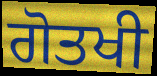
ਗੋਤਖੀ